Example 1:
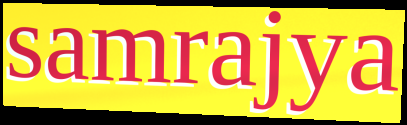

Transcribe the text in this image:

samrajya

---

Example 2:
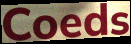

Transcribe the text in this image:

Coeds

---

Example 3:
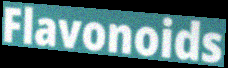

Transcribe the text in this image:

Flavonoids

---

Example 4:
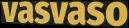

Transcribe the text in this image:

vasvaso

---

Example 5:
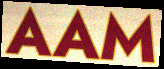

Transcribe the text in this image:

AAM